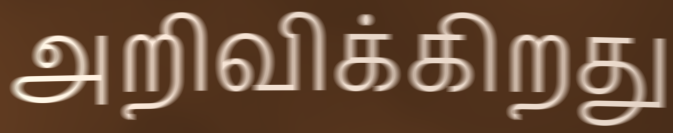
அறிவிக்கிறது